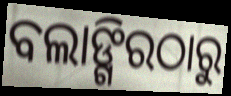
ବଲାଙ୍ଗିରଠାରୁ